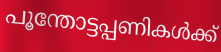
പൂന്തോട്ടപ്പണികൾക്ക്